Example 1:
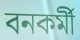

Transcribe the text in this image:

বনকর্মী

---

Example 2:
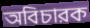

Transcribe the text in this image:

অবিচারক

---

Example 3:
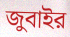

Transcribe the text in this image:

জুবাইর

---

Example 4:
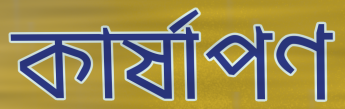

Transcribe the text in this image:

কার্ষাপণ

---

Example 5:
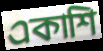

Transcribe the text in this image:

একাশি